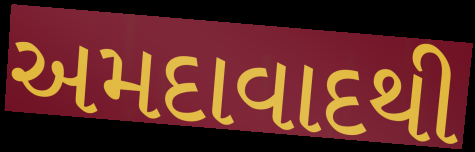
અમદાવાદથી